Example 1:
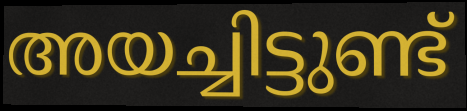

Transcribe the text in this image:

അയച്ചിട്ടുണ്ട്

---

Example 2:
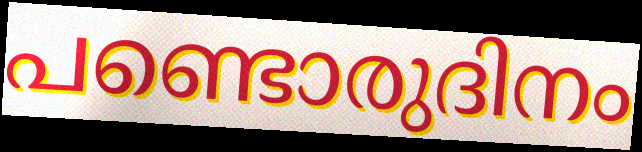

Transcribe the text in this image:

പണ്ടൊരുദിനം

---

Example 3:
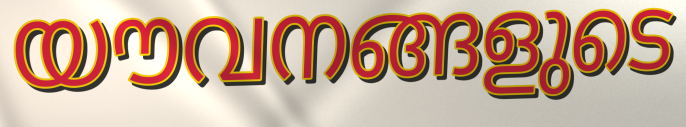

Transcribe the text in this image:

യൗവനങ്ങളുടെ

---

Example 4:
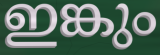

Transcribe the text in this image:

ഇങ്കും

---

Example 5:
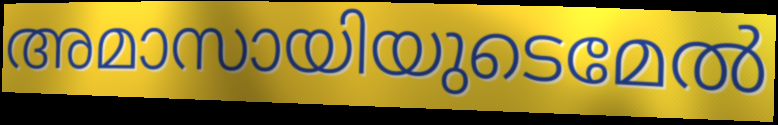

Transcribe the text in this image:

അമാസായിയുടെമേൽ